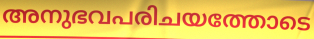
അനുഭവപരിചയത്തോടെ